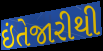
ઇંતેજારીથી